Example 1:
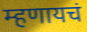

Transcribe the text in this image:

म्हणायचं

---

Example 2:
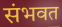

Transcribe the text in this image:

संभवत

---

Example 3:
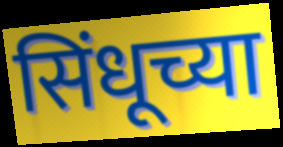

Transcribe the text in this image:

सिंधूच्या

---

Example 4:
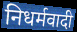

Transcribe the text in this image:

निधर्मवादी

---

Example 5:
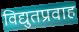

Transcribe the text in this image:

विद्युतप्रवाह